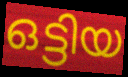
ഒട്ടിയ